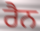
ਰੈਨ